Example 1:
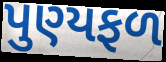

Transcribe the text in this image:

પુણ્યફળ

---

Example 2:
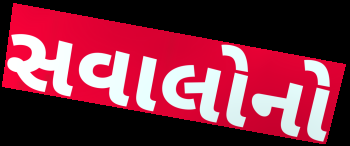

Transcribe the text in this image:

સવાલોનો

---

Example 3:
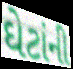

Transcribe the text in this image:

ઘેટાંની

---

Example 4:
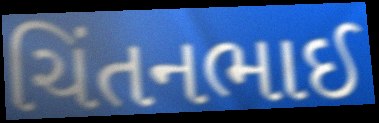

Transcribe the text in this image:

ચિંતનભાઈ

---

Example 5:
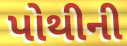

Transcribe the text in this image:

પોથીની